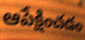
ఆపేక్షించడం